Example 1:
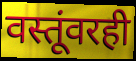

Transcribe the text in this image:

वस्तूंवरही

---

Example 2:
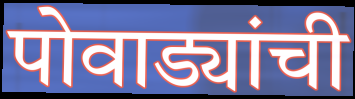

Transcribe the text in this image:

पोवाड्यांची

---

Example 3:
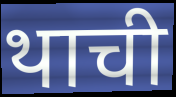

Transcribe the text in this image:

थाची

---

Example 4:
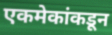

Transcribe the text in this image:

एकमेकांकडून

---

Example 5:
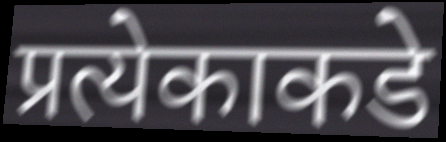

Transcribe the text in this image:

प्रत्येकाकडे